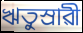
ঋতুস্ৰাৱী